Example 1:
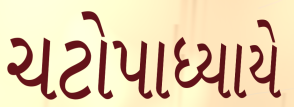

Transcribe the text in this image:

ચટોપાધ્યાયે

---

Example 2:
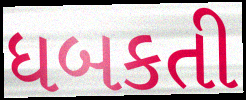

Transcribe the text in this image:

ધબકતી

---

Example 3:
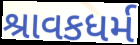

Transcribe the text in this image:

શ્રાવકધર્મ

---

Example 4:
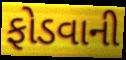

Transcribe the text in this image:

ફોડવાની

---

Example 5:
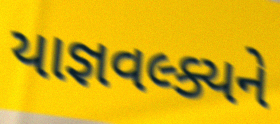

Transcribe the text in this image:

યાજ્ઞવલ્ક્યને